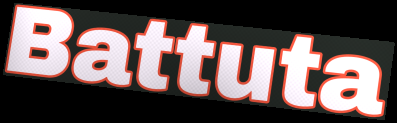
Battuta